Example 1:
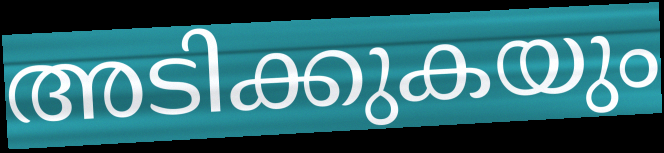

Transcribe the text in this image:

അടിക്കുകയും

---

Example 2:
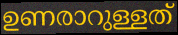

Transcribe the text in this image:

ഉണരാറുള്ളത്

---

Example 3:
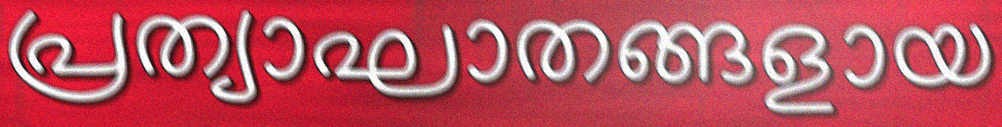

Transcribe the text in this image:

പ്രത്യാഘാതങ്ങളായ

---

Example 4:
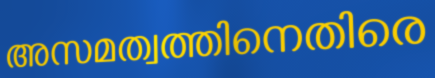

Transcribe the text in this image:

അസമത്വത്തിനെതിരെ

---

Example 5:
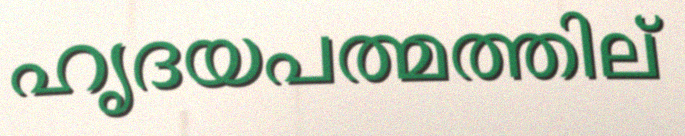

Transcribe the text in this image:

ഹൃദയപത്മത്തില്